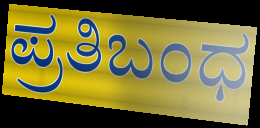
ಪ್ರತಿಬಂಧ